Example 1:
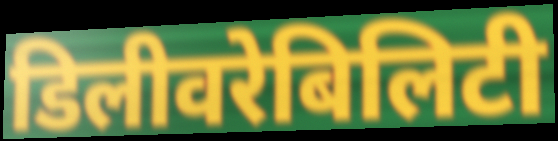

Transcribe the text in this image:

डिलीवरेबिलिटी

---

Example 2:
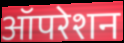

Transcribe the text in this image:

ऑपरेशन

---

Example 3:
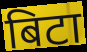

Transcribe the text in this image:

बिटा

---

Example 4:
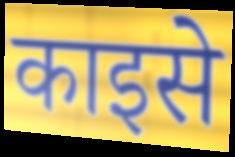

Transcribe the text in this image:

काइसे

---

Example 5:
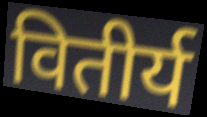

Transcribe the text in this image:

वितीर्य